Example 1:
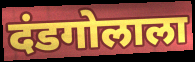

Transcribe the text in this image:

दंडगोलाला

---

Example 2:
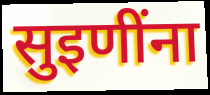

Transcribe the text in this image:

सुइणींना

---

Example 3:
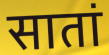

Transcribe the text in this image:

सातां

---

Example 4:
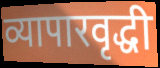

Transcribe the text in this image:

व्यापारवृद्धी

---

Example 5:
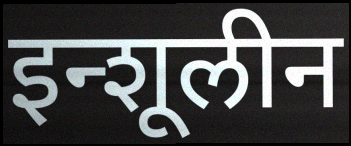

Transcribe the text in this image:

इन्शूलीन